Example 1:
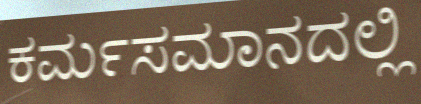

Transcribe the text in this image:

ಕರ್ಮಸಮಾನದಲ್ಲಿ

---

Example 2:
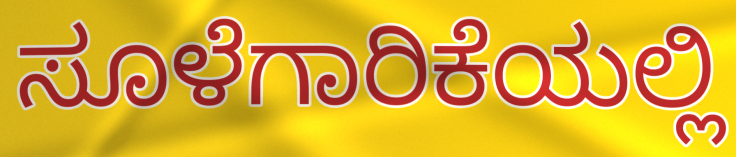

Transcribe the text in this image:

ಸೂಳೆಗಾರಿಕೆಯಲ್ಲಿ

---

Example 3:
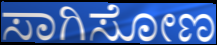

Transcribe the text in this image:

ಸಾಗಿಸೋಣ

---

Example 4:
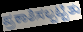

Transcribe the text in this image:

ಪ್ರಕಾಶಿಸಲ್ಪಟ್ಟಿತು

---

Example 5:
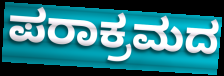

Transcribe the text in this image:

ಪರಾಕ್ರಮದ